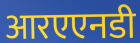
आरएएनडी